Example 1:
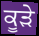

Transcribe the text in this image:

ਕੂਡ਼ੇ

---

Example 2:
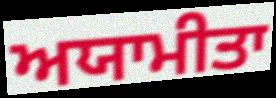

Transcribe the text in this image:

ਅਯਾਮੀਤਾ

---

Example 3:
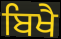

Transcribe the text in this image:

ਬਿਖੈ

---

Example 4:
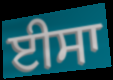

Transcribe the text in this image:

ਈਸਾ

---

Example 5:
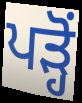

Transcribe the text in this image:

ਪੜ੍ਹੋਂ